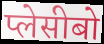
प्लेसीबो